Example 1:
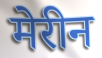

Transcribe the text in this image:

मेरीन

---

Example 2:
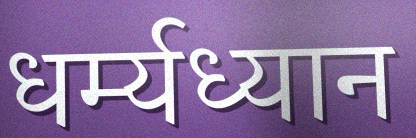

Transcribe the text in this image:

धर्म्यध्यान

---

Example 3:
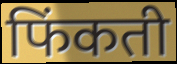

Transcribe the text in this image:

फिंकती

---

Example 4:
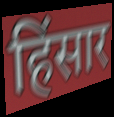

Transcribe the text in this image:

हिंसार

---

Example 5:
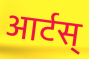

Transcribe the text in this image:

आर्टस्